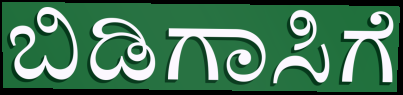
ಬಿಡಿಗಾಸಿಗೆ